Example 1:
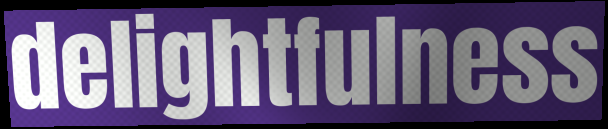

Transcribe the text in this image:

delightfulness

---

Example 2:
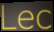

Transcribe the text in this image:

Lec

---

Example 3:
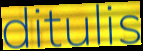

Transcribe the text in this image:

ditulis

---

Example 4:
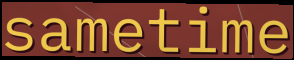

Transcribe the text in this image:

sametime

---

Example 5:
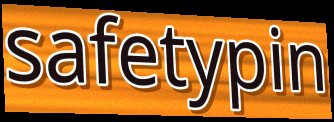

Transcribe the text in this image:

safetypin